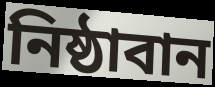
নিষ্ঠাবান